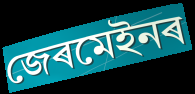
জেৰমেইনৰ